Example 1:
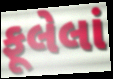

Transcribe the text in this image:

ફૂલેલાં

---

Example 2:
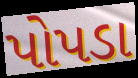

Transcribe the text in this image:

પોપડા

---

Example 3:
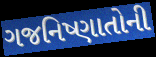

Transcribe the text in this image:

ગજનિષ્ણાતોની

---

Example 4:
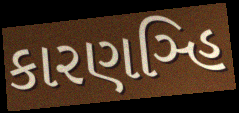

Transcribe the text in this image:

કારણઞ્હિ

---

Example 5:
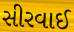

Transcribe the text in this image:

સીરવાઈ